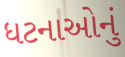
ધટનાઓનું